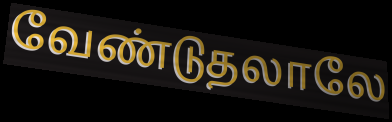
வேண்டுதலாலே